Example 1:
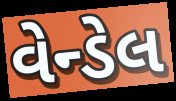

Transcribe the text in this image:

વેન્ડેલ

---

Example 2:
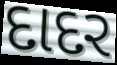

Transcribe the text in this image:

દાદર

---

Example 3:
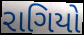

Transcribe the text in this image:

રાગિયો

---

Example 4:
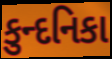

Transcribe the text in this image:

કુન્દનિકા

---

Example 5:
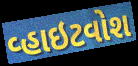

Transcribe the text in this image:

વ્હાઇટવોશ